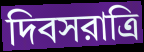
দিবসরাত্রি